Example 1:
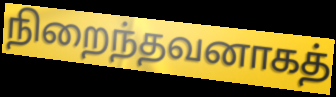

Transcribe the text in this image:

நிறைந்தவனாகத்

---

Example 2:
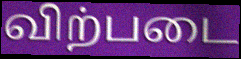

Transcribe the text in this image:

விற்படை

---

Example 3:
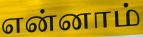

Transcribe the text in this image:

என்னாம்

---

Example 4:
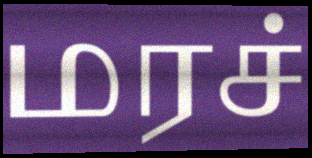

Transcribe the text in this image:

மரச்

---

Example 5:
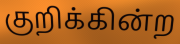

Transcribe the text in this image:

குறிக்கின்ற